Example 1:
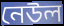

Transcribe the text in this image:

নেউল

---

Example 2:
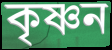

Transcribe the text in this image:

কৃষ্ণন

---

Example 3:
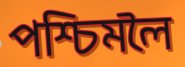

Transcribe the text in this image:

পশ্চিমলৈ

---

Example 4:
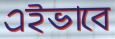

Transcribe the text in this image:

এইভাবে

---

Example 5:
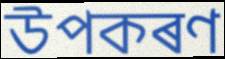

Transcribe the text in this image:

উপকৰণ